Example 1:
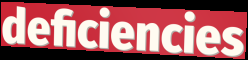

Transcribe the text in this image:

deficiencies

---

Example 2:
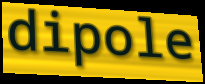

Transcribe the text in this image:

dipole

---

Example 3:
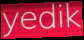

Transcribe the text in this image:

yedik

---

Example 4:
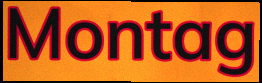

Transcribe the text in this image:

Montag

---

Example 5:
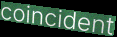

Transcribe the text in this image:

coincident